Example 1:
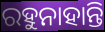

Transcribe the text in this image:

ରହୁନାହାନ୍ତି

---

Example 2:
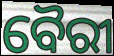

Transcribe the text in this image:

ବୈରୀ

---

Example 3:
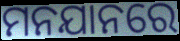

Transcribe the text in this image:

ମନଯାନରେ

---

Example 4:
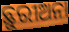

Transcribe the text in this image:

ଛୁରୀଅନା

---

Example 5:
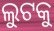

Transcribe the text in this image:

ଲୁଟକୁ